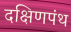
दक्षिणपंथ